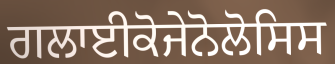
ਗਲਾਈਕੋਜੇਨੋਲੋਸਿਸ